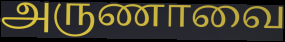
அருணாவை